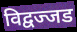
विद्वज्जड